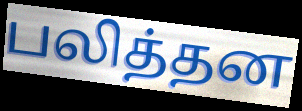
பலித்தன